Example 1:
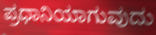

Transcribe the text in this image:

ಪ್ರಧಾನಿಯಾಗುವುದು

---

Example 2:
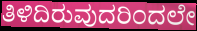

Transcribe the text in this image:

ತಿಳಿದಿರುವುದರಿಂದಲೇ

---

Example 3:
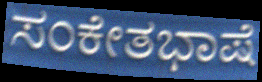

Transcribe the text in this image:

ಸಂಕೇತಭಾಷೆ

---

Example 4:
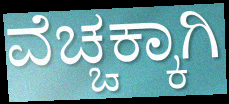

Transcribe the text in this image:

ವೆಚ್ಚಕ್ಕಾಗಿ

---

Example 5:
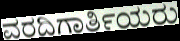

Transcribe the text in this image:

ವರದಿಗಾರ್ತಿಯರು